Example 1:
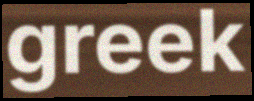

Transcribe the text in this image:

greek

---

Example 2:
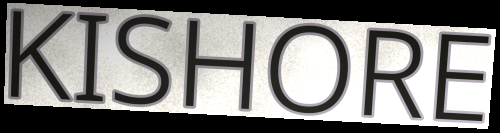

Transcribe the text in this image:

KISHORE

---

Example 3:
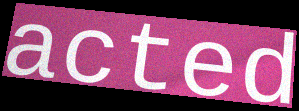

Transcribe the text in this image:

acted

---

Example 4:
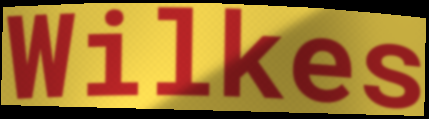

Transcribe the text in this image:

Wilkes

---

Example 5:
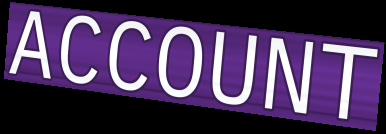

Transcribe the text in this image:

ACCOUNT